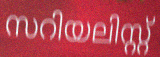
സറിയലിസ്റ്റ്